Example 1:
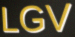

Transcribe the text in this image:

LGV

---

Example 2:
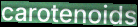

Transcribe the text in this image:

carotenoids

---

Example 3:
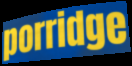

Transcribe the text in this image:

porridge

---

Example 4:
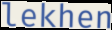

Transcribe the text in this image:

lekhen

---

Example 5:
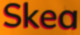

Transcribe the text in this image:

Skea